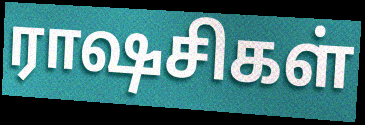
ராஷசிகள்